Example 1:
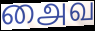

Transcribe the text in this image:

அைவ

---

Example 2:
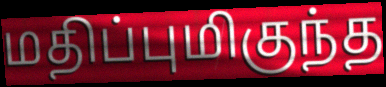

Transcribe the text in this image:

மதிப்புமிகுந்த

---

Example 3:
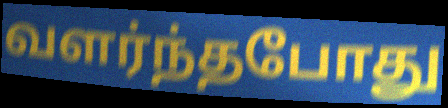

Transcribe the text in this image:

வளர்ந்தபோது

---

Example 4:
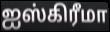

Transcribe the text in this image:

ஐஸ்கிரீமா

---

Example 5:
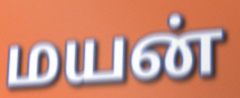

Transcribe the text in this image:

மயன்